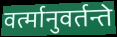
वर्त्मानुवर्तन्ते